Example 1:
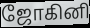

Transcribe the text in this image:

ஜோகினி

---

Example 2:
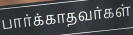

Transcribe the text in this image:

பார்க்காதவர்கள்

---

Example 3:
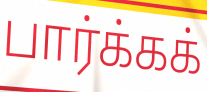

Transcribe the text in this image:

பார்க்கக்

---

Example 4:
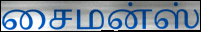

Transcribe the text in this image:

சைமன்ஸ்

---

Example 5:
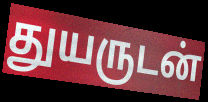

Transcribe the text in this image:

துயருடன்